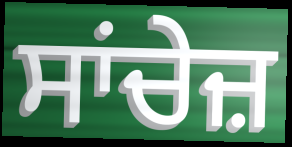
ਸਾਂਚੇਜ਼